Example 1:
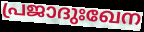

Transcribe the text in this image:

പ്രജാദുഃഖേന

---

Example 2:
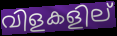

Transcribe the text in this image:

വിളകളില്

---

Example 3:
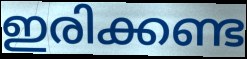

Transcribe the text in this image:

ഇരിക്കണ്ട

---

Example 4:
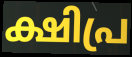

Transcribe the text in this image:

ക്ഷിപ്ര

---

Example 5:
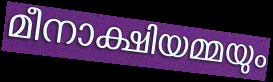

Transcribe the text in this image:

മീനാക്ഷിയമ്മയും